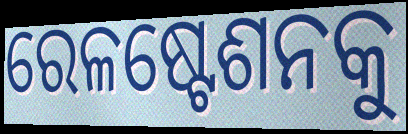
ରେଳଷ୍ଟେଶନକୁ